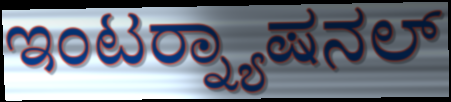
ಇಂಟರ್‍ನ್ಯಾಷನಲ್